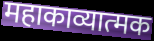
महाकाव्‍यात्‍मक